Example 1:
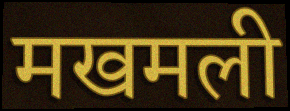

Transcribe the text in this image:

मखमली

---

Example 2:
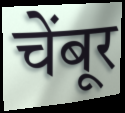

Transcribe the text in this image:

चेंबूर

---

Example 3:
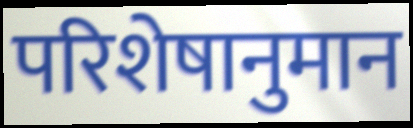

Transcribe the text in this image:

परिशेषानुमान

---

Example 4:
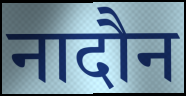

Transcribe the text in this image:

नादौन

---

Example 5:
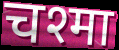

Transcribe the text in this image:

चश्मा